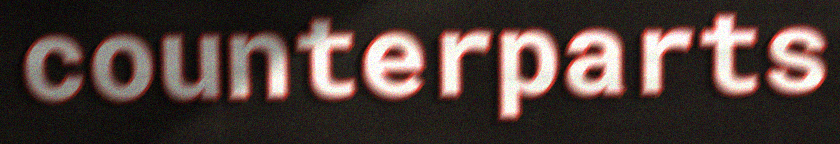
counterparts